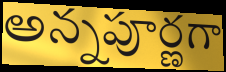
అన్నపూర్ణగా